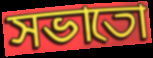
সভাতো